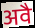
अवै